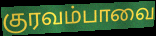
குரவம்பாவை